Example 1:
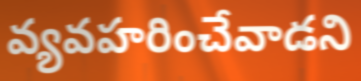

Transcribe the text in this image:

వ్యవహరించేవాడని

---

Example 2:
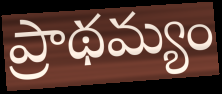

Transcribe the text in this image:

ప్రాథమ్యం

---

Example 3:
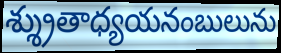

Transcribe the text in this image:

శ్శ్రుతాధ్యయనంబులును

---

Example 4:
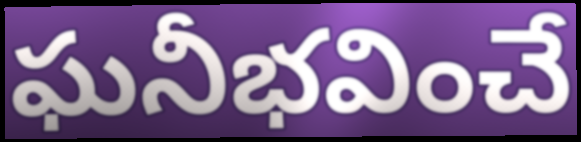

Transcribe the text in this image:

ఘనీభవించే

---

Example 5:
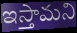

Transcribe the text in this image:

ఇస్తామని